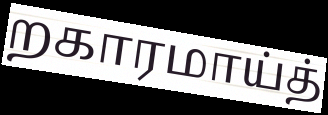
றகாரமாய்த்